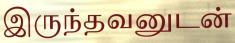
இருந்தவனுடன்